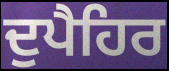
ਦੁਪੈਹਿਰ